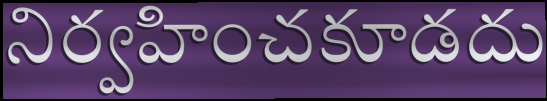
నిర్వహించకూడదు